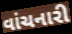
વાંચનારી